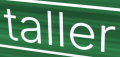
taller